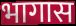
भागास